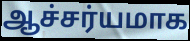
ஆச்சர்யமாக